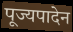
पूज्यपादेन